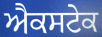
ਐਕਸਟੇਕ